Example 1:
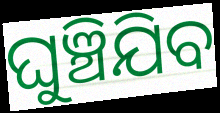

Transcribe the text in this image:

ଘୁଞ୍ଚିଯିବ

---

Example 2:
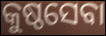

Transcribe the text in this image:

କୁଷ୍ଠସେବା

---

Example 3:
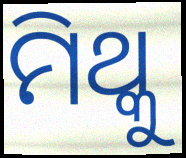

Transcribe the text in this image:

ମିଥ୍କୁ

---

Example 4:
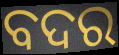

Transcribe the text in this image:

ବଦର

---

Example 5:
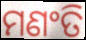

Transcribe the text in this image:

ମଣଂତି